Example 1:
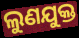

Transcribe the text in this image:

ଲୁଣଯୁକ୍ତ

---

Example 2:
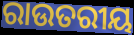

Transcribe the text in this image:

ରାଉତରୀୟ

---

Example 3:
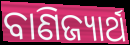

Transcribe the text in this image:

ବାଣିଜ୍ୟାର୍ଥ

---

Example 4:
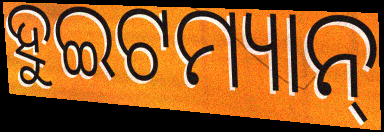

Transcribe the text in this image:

ହୁଇଟମ୍ୟାନ୍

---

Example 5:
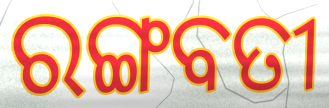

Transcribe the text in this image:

ରଙ୍ଗବତୀ